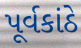
પૂર્વકાંઠે